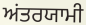
ਅਂਤਰਯਾਮੀ